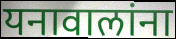
यनावालांना